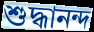
শুদ্ধানন্দ